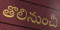
తొలినుంచీ